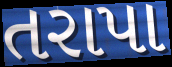
તરાપા